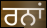
ਰਨਾਂ